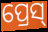
ପ୍ରେସ୍